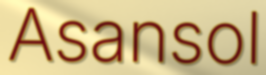
Asansol